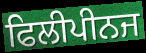
ਫਿਲੀਪੀਨਜ